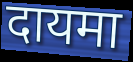
दायमा